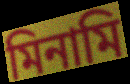
মিনামি